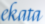
ekata